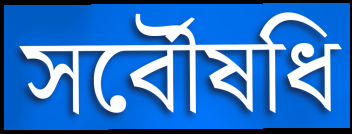
সর্বৌষধি